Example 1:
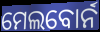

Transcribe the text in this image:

ମେଲବୋର୍ନ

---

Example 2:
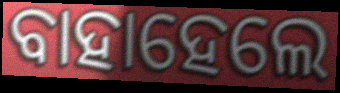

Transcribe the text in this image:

ବାହାହେଲେ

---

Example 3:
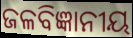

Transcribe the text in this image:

ଜଳବିଜ୍ଞାନୀୟ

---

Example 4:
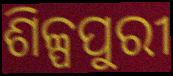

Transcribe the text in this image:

ଶିଳ୍ପପୁରୀ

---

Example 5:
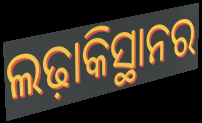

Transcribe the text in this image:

ଲଢ଼ାକିସ୍ଥାନର